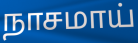
நாசமாய்